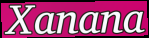
Xanana